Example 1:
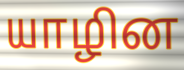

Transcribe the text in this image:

யாழின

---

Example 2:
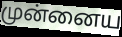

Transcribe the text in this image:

முன்னைய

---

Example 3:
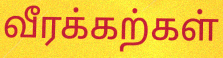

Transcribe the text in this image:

வீரக்கற்கள்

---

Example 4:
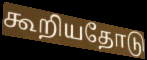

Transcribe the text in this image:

கூறியதோடு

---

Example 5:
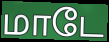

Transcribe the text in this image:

மாடே